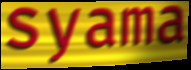
syama